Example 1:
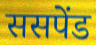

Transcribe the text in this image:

ससपेंड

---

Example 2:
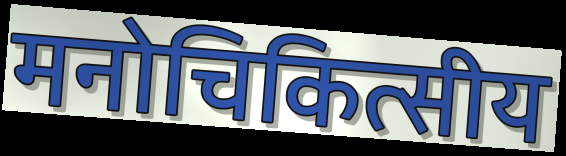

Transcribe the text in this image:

मनोचिकित्सीय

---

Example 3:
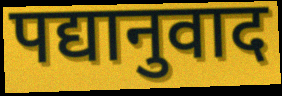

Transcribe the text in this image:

पद्यानुवाद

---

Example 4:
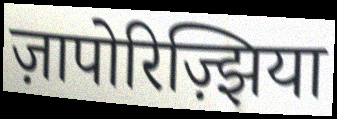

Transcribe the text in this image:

ज़ापोरिज़्झिया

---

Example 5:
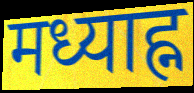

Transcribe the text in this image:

मध्याह्न